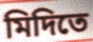
মিদিতে